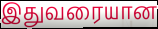
இதுவரையான